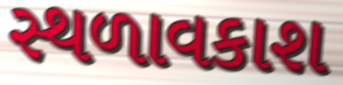
સ્થળાવકાશ